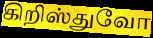
கிறிஸ்துவோ